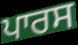
ਪਾਰਸ